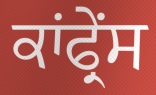
ਕਾਂਫ੍ਰੇਂਸ